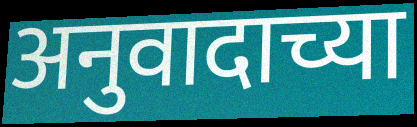
अनुवादाच्या